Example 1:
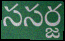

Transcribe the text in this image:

ససర్జ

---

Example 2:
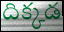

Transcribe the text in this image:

దిక్కడ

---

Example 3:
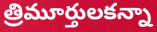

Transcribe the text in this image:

త్రిమూర్తులకన్నా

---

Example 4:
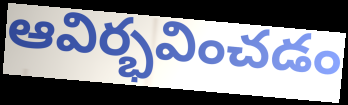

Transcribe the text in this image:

ఆవిర్భవించడం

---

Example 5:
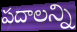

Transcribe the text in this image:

పదాలన్ని